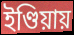
ইণ্ডিয়ায়